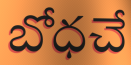
బోధచే